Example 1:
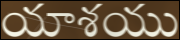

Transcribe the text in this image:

యాశయు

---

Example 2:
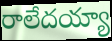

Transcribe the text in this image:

రాలేదయ్యా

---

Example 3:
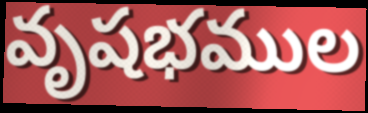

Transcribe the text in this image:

వృషభముల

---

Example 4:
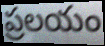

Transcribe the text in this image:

ప్రలయం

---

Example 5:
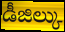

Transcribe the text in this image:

డీజిల్కు